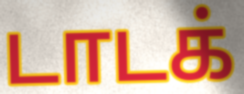
டாடக்